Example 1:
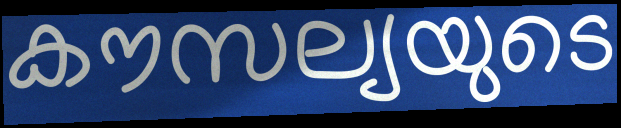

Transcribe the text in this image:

കൗസല്യയുടെ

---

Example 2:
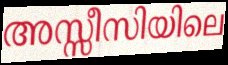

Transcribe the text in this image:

അസ്സീസിയിലെ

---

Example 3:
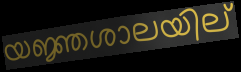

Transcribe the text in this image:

യജ്ഞശാലയില്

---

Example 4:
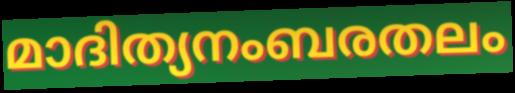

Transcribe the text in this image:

മാദിത്യനംബരതലം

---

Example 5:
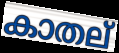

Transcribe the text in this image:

കാതല്